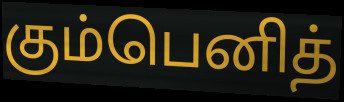
கும்பெனித்